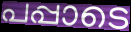
പപ്പാടെ